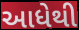
આધેથી